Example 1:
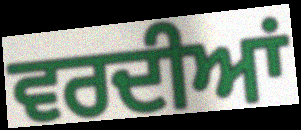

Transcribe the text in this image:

ਵਰਦੀਆਂ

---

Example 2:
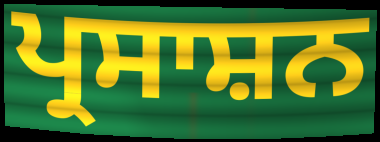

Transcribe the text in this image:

ਪ੍ਰਸਾਸ਼ਨ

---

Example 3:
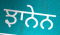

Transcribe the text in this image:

ਝਾਨੇਨ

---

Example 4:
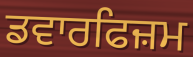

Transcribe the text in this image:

ਡਵਾਰਫਿਜ਼ਮ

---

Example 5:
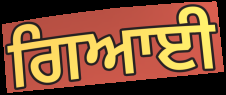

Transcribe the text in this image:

ਗਿਆਈ